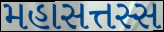
મહાસત્તસ્સ